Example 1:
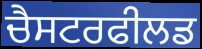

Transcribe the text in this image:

ਚੈਸਟਰਫੀਲਡ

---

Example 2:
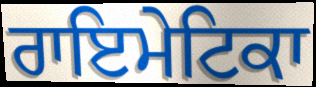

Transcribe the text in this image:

ਰਾਇਮੇਟਿਕਾ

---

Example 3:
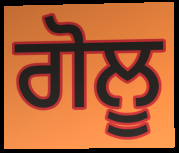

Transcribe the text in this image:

ਗੋਲੂ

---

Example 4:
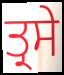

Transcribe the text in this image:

ਤ੍ਰਸੇ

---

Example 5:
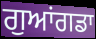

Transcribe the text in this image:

ਗੁਆਂਗਡਾ